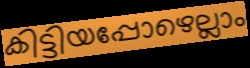
കിട്ടിയപ്പോഴെല്ലാം